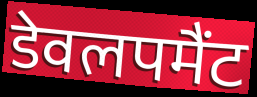
डेवलपमैंट